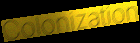
Colonization